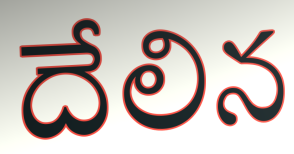
దేలిన